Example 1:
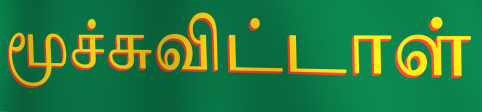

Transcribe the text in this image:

மூச்சுவிட்டாள்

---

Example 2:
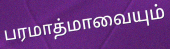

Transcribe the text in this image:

பரமாத்மாவையும்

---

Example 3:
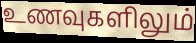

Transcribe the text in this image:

உணவுகளிலும்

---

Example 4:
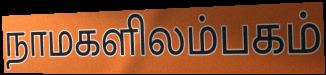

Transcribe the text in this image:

நாமகளிலம்பகம்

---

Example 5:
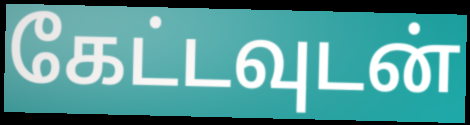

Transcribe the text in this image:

கேட்டவுடன்